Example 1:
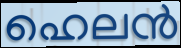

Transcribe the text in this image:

ഹെലൻ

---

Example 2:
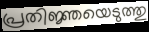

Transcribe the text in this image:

പ്രതിജ്ഞയെടുത്തു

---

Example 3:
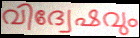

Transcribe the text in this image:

വിദ്വേഷവും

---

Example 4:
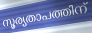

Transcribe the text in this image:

സൂര്യതാപത്തിന്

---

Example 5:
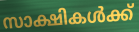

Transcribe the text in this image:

സാക്ഷികൾക്ക്